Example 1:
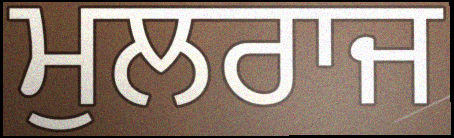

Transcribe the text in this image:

ਮੁਲਰਾਜ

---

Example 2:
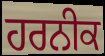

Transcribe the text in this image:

ਹਰਨੀਕ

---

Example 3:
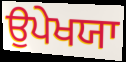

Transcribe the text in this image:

ਉਪੇਖਯਾ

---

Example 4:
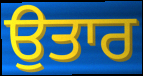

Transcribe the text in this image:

ਉਤਾਰ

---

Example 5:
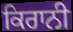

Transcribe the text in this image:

ਕਿਰਾਨੀ